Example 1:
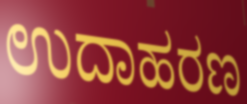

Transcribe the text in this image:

ಉದಾಹರಣ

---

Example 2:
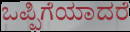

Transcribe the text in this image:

ಒಪ್ಪಿಗೆಯಾದರೆ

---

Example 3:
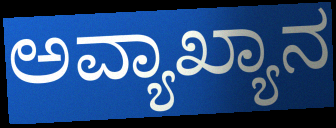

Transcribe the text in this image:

ಅವ್ಯಾಖ್ಯಾನ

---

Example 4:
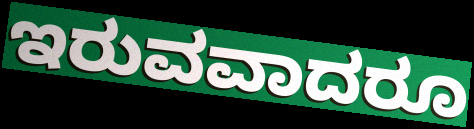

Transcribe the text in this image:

ಇರುವವಾದರೂ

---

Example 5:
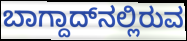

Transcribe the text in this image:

ಬಾಗ್ದಾದ್‌ನಲ್ಲಿರುವ